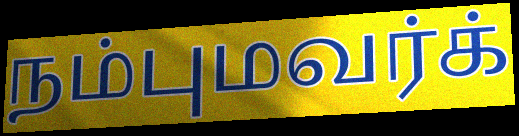
நம்புமவர்க்